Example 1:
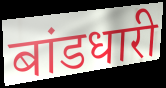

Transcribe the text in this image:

बांडधारी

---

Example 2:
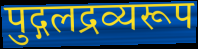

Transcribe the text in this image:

पुद्गलद्रव्यरूप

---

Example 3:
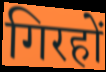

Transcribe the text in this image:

गिरहों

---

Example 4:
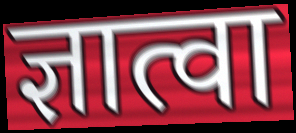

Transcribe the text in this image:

ज्ञात्वा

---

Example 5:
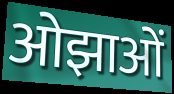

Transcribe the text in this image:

ओझाओं